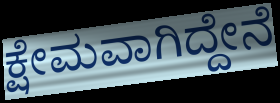
ಕ್ಷೇಮವಾಗಿದ್ದೇನೆ